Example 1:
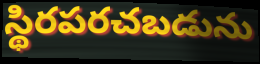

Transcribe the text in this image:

స్థిరపరచబడును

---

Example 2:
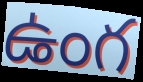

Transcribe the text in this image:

ఉంగ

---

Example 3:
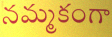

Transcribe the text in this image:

నమ్మకంగా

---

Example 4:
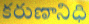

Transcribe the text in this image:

కరుణానిధి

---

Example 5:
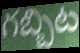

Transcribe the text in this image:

గబ్బిట